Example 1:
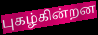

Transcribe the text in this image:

புகழ்கின்றன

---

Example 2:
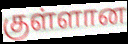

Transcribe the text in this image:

குள்ளான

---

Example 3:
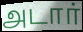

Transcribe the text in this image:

அடார்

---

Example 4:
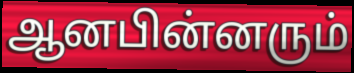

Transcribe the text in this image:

ஆனபின்னரும்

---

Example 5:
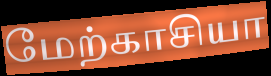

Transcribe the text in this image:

மேற்காசியா